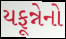
યફૂન્નેનો